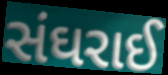
સંઘરાઈ